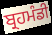
ਬ੍ਰਹਮੰਡੀ